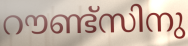
റൗണ്ട്സിനു